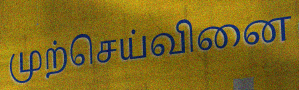
முற்செய்வினை